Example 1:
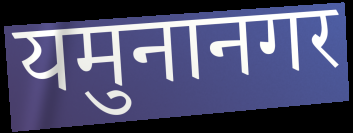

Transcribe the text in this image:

यमुनानगर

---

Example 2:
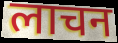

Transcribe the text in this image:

लाचन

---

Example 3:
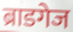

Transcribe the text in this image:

ब्राडगेज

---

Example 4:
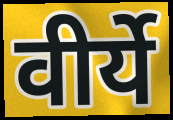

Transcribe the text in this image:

वीर्ये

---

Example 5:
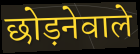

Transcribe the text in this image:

छोड़नेवाले